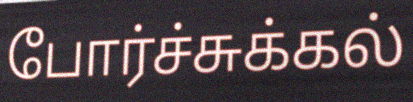
போர்ச்சுக்கல்